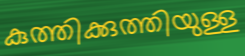
കുത്തിക്കുത്തിയുള്ള